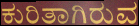
ಕುರಿತಾಗಿರುವ